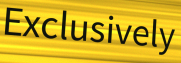
Exclusively